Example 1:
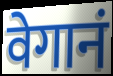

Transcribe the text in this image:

वेगानं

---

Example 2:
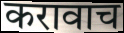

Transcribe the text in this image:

करावाच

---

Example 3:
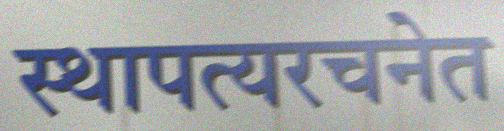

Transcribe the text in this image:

स्थापत्यरचनेत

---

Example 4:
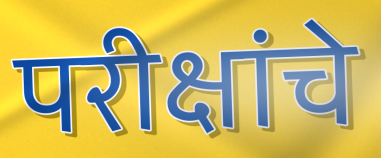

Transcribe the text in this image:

परीक्षांचे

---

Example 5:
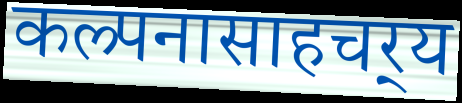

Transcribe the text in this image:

कल्पनासाहचर्य